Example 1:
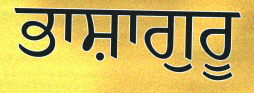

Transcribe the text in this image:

ਭਾਸ਼ਾਗੁਰੂ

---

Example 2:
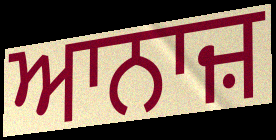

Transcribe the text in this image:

ਆਨਾਜ਼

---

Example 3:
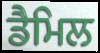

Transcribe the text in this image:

ਡੈਮਿਲ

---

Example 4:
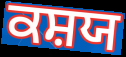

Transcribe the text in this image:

ਕਸ਼ਯ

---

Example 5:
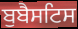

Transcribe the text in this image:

ਬੁਬੈਸਟਿਸ